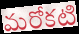
మరోకటి